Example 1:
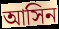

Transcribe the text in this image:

আসিন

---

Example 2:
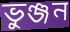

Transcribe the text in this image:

ভুঞ্জন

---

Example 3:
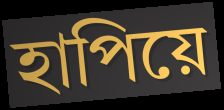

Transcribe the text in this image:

হাপিয়ে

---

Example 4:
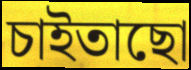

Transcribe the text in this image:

চাইতাছো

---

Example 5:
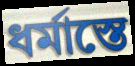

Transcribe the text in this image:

ধর্মাস্তে